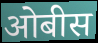
ओबीस